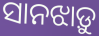
ସାନଝାଡ଼ୁ